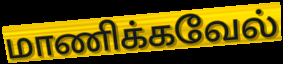
மாணிக்கவேல்